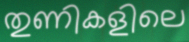
തുണികളിലെ